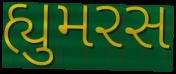
હ્યુમરસ